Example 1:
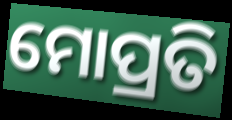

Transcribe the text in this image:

ମୋପ୍ରତି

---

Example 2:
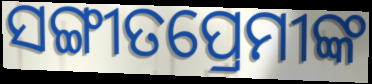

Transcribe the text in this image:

ସଙ୍ଗୀତପ୍ରେମୀଙ୍କ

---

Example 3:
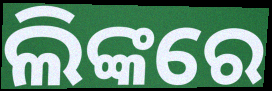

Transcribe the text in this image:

ଲିଙ୍କରେ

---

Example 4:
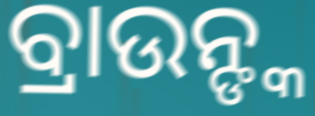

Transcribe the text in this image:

ବ୍ରାଉନ୍ଙ୍କ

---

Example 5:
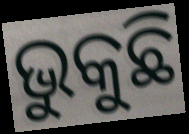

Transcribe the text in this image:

ଭୁକୁଛି